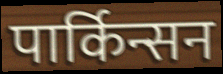
पार्किन्सन